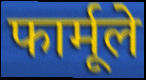
फार्मूले